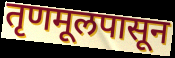
तृणमूलपासून